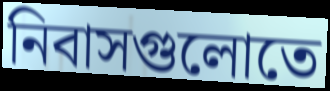
নিবাসগুলোতে